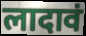
लादावं